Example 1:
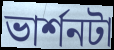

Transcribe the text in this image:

ভার্শনটা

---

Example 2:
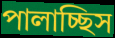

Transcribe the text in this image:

পালাচ্ছিস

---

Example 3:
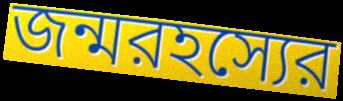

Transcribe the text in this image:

জন্মরহস্যের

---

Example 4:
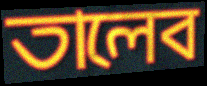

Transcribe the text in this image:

তালেব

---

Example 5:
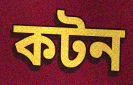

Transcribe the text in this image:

কটন